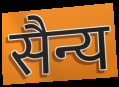
सैन्य